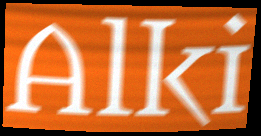
Alki